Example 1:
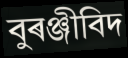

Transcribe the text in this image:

বুৰঞ্জীবিদ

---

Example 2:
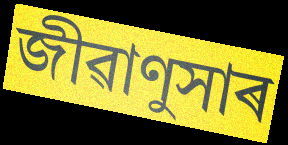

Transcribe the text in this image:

জীৱাণুসাৰ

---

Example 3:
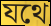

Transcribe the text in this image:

যথে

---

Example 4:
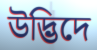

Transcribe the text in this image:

উদ্ভিদে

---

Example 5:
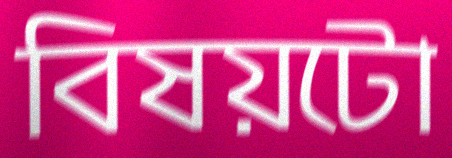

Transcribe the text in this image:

বিষয়টো